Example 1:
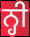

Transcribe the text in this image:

ਨ੍ਹੀ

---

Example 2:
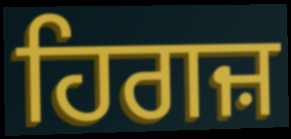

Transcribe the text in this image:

ਹਿਗਜ਼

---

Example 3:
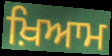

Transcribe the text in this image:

ਖ਼ਿਆਮ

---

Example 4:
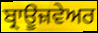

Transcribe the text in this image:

ਬ੍ਰਾਊਜ਼ਵੇਅਰ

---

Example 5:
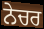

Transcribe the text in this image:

ਨੇਚਰ